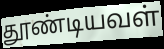
தூண்டியவள்